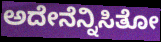
ಅದೇನೆನ್ನಿಸಿತೋ